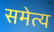
समेत्य